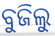
ବୁଜିଲୁ